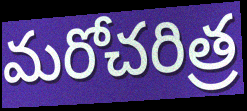
మరోచరిత్ర